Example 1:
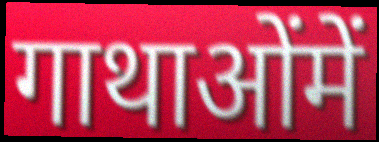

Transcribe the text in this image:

गाथाओंमें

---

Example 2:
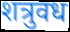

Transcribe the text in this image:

शत्रुवध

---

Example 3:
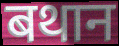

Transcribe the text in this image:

बथान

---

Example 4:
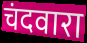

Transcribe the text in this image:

चंदवारा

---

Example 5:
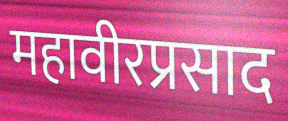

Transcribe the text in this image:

महावीरप्रसाद